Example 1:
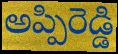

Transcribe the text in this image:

అప్పిరెడ్డి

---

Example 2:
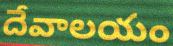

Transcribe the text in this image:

దేవాలయం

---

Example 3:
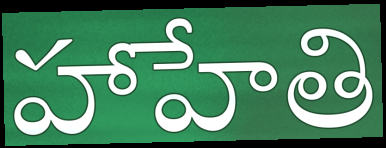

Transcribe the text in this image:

హాహేతి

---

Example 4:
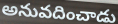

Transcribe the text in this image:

అనువదించాడు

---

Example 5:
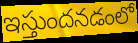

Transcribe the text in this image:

ఇస్తుందనడంలో